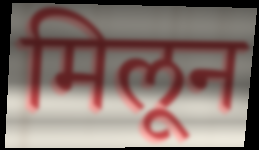
मिलून